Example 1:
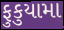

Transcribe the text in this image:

ફુકુયામા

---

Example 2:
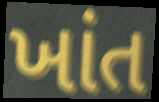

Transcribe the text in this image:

ખાંત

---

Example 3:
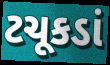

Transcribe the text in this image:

ટચૂકડાં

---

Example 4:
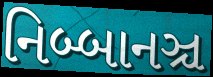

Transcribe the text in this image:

નિબ્બાનઞ્ચ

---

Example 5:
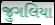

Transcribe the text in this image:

જુગલિયા